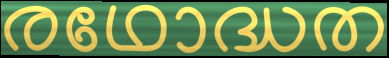
രഥോദ്ധത